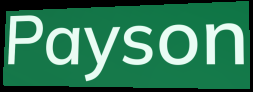
Payson